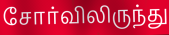
சோர்விலிருந்து